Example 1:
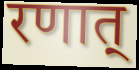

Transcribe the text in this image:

रणात्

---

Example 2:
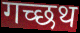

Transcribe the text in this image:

गच्छथ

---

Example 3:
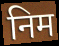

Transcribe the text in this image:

निम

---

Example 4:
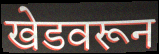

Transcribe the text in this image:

खेडवरून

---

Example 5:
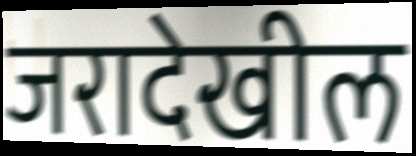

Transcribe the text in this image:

जरादेखील